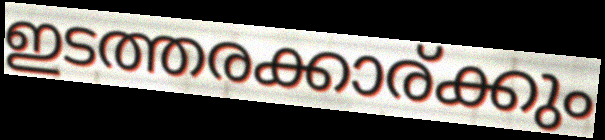
ഇടത്തരക്കാര്ക്കും